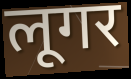
लूगर